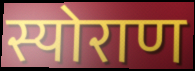
स्योराण